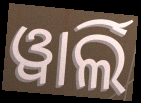
ୱାର୍ଲି